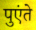
पुएंते